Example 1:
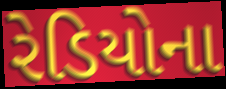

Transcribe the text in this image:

રેડિયોના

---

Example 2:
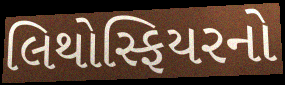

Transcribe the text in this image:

લિથોસ્ફિયરનો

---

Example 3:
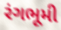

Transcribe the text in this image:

રંગભૂમી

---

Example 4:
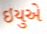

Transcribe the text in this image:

ઇયુએ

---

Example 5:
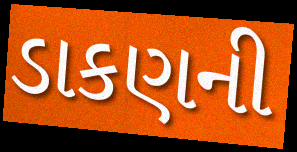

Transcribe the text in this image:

ડાકણની